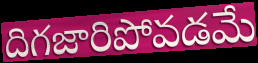
దిగజారిపోవడమే